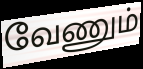
வேணும்